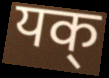
यक्